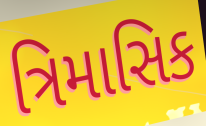
ત્રિમાસિક